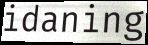
idaning